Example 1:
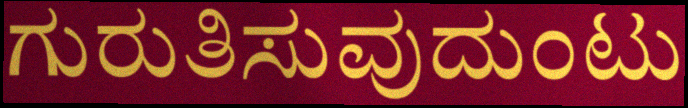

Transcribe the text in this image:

ಗುರುತಿಸುವುದುಂಟು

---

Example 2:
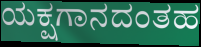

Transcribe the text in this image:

ಯಕ್ಷಗಾನದಂತಹ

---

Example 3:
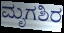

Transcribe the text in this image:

ಮೃಗಶಿರ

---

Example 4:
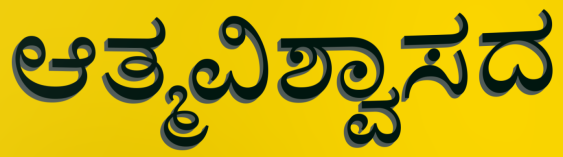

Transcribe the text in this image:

ಆತ್ಮವಿಶ್ವಾಸದ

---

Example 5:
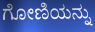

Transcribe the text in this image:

ಗೋಣಿಯನ್ನು